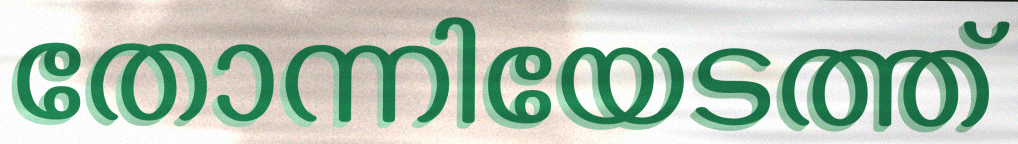
തോന്നിയേടത്ത്